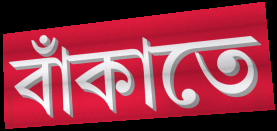
বাঁকাতে